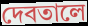
দেবতালে